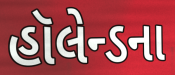
હૉલેન્ડના